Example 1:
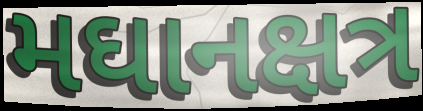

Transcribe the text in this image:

મઘાનક્ષત્ર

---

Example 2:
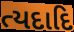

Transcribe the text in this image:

ત્યદાદિ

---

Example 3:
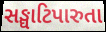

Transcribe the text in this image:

સઙ્ઘાટિપારુતા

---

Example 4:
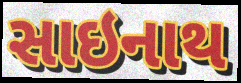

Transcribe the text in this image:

સાઇનાથ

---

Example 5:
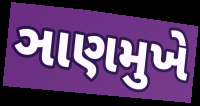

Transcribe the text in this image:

ઞાણમુખે